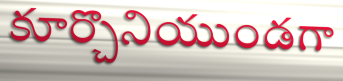
కూర్చొనియుండగా